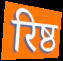
रिष्ठ